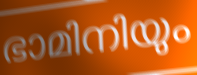
ഭാമിനിയും